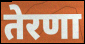
तेरणा